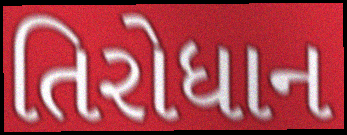
તિરોધાન